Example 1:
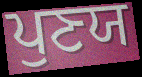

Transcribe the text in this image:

ਪੁਣਯ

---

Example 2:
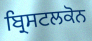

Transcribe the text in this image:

ਬ੍ਰਿਸਟਲਕੋਨ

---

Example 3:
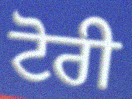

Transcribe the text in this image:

ਟੋਰੀ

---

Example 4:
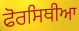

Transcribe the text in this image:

ਫੋਰਸਿਥੀਆ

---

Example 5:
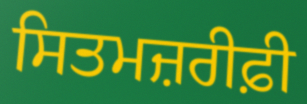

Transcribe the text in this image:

ਸਿਤਮਜ਼ਰੀਫ਼ੀ